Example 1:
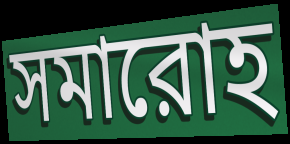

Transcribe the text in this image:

সমারোহ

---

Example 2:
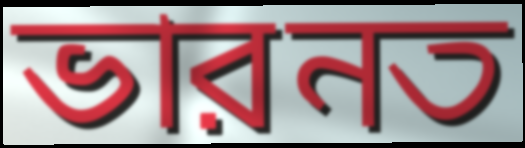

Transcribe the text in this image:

ভারনত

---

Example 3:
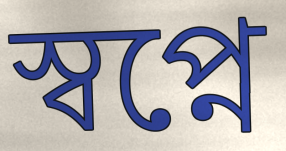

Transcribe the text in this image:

স্বপ্নে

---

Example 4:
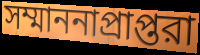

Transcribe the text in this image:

সম্মাননাপ্রাপ্তরা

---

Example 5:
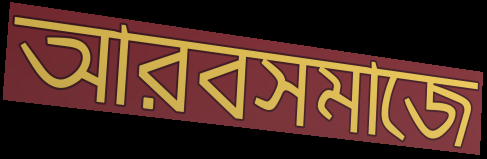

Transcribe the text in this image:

আরবসমাজে